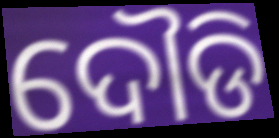
ଦୌଡି